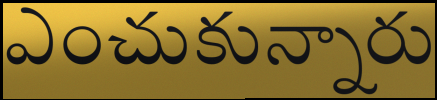
ఎంచుకున్నారు